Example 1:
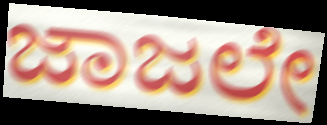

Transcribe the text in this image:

ಜಾಜಲೇ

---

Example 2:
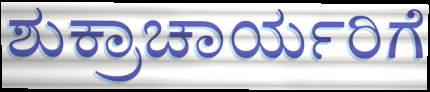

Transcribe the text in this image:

ಶುಕ್ರಾಚಾರ್ಯರಿಗೆ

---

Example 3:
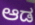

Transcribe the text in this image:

ಆಡ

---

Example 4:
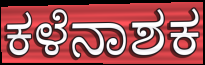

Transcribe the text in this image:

ಕಳೆನಾಶಕ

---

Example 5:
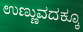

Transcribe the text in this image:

ಉಣ್ಣುವದಕ್ಕೂ